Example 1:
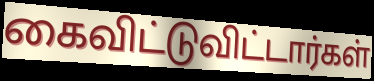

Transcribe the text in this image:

கைவிட்டுவிட்டார்கள்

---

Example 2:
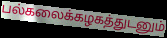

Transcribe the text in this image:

பல்கலைக்கழகத்துடனும்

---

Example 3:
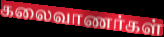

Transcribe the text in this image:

கலைவாணர்கள்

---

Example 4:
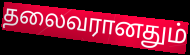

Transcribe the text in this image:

தலைவரானதும்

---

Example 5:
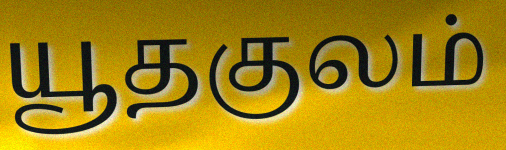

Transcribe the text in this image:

யூதகுலம்